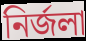
নির্জলা